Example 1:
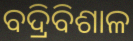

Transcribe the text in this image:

ବଦ୍ରିବିଶାଳ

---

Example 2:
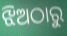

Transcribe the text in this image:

ଝିଅଠାରୁ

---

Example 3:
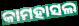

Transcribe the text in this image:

କାମହାସଲ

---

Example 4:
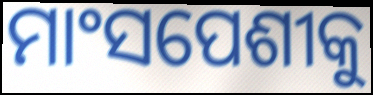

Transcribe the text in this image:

ମାଂସପେଶୀକୁ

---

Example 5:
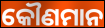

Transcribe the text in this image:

କୌଣମାନ